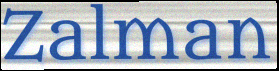
Zalman